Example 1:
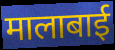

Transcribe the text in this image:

मालाबाई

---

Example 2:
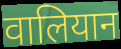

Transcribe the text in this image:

वालियान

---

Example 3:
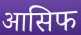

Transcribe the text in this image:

आसिफ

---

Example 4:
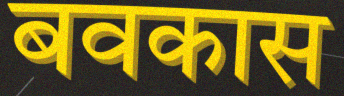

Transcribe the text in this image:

बवकास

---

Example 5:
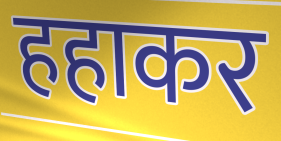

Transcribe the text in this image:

हहाकर